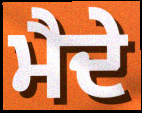
ਮੈਦੇ